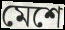
মেশে